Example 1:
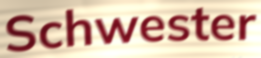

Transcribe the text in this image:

Schwester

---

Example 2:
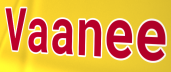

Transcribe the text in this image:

Vaanee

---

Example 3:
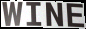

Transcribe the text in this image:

WINE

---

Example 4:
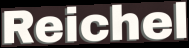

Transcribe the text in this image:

Reichel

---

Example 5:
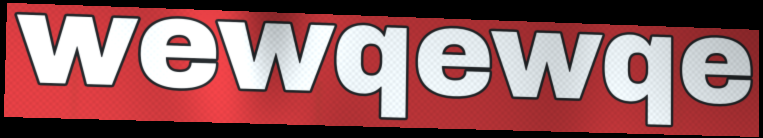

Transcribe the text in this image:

wewqewqe